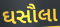
ઘસૌલા